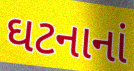
ઘટનાનાં